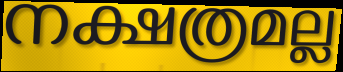
നക്ഷത്രമല്ല